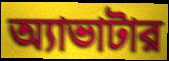
অ্যাভাটার